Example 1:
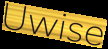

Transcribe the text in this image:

Uwise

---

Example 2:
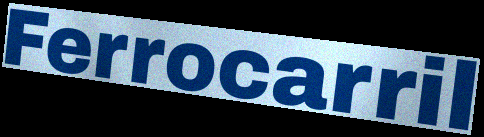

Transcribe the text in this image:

Ferrocarril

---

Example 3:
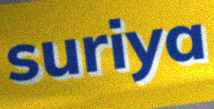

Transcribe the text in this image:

suriya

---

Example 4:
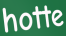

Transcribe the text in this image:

hotte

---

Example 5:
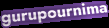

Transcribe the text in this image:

gurupournima